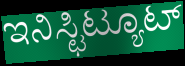
ಇನಿಸ್ಟಿಟ್ಯೂಟ್